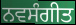
ਨਵਸੰਗੀਤ